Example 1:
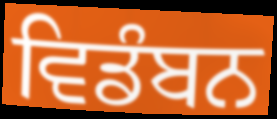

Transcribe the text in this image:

ਵਿਡੰਬਨ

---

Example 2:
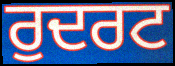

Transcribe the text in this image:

ਰੁਦਰਟ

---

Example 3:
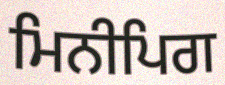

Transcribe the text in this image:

ਮਿਨੀਪਿਗ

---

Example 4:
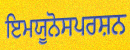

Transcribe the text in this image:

ਇਮਯੂਨੋਸਪਰਸ਼ਨ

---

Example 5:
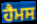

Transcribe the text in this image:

ਹੈਮਸ